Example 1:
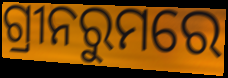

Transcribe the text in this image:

ଗ୍ରୀନରୁମରେ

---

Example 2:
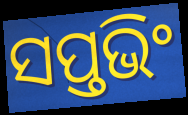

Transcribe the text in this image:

ସପ୍ତଭିଂ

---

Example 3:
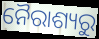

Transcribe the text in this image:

ନୈରାଶ୍ୟରୁ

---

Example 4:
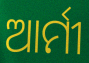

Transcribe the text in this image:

ଆର୍ମୀ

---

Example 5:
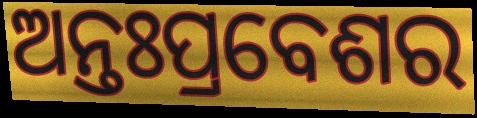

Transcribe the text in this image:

ଅନ୍ତଃପ୍ରବେଶର